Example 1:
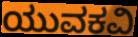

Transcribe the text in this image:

ಯುವಕವಿ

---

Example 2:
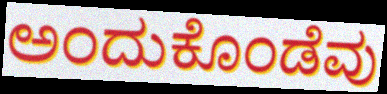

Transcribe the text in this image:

ಅಂದುಕೊಂಡೆವು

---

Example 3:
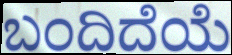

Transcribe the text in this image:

ಬಂದಿದೆಯೆ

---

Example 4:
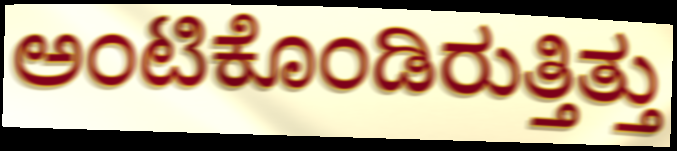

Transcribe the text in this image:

ಅಂಟಿಕೊಂಡಿರುತ್ತಿತ್ತು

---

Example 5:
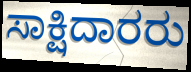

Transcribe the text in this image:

ಸಾಕ್ಷಿದಾರರು